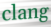
clang